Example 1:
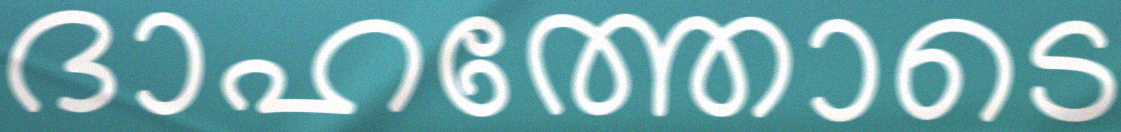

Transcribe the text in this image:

ദാഹത്തോടെ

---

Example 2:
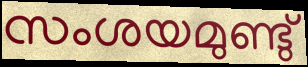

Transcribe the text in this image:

സംശയമുണ്ടു്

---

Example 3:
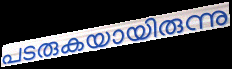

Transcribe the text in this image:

പടരുകയായിരുന്നു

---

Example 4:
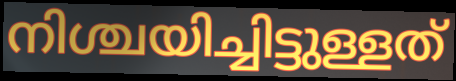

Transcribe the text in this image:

നിശ്ചയിച്ചിട്ടുള്ളത്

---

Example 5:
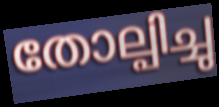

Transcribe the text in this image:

തോല്പിച്ചു